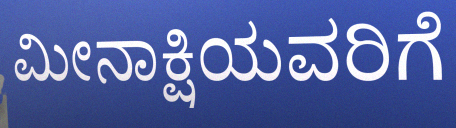
ಮೀನಾಕ್ಷಿಯವರಿಗೆ